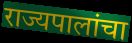
राज्यपालांचा